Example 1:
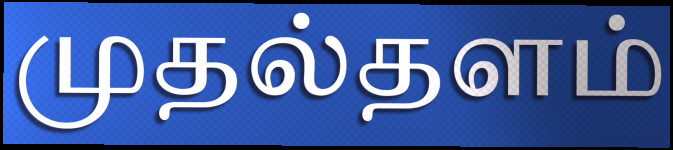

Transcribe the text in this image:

முதல்தளம்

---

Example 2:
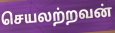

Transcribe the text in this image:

செயலற்றவன்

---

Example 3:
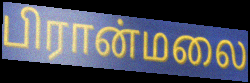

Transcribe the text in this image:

பிரான்மலை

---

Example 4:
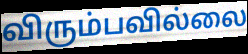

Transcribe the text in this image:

விரும்பவில்லை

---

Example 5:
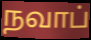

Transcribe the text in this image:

நவாப்